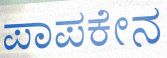
ಪಾಪಕೇನ